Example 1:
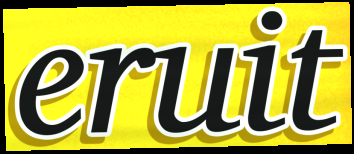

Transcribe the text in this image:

eruit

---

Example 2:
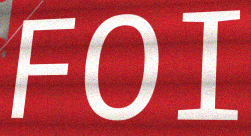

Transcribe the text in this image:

FOI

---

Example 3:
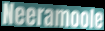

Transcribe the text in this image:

Neeramoole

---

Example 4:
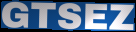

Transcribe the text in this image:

GTSEZ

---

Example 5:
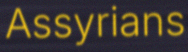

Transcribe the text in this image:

Assyrians